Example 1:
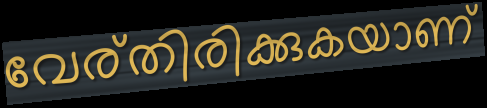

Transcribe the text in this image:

വേര്തിരിക്കുകയാണ്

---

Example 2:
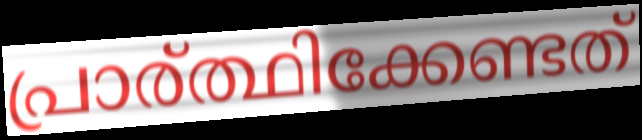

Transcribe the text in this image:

പ്രാര്ത്ഥിക്കേണ്ടത്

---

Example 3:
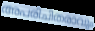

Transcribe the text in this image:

അപരിചിതരാവും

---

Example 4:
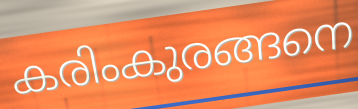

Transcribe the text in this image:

കരിംകുരങ്ങനെ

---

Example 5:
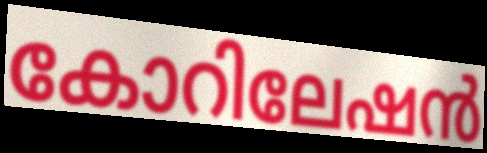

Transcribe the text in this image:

കോറിലേഷൻ